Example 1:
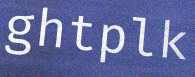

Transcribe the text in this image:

ghtplk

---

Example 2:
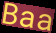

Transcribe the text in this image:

Baa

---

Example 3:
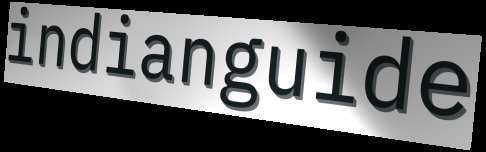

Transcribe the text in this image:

indianguide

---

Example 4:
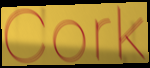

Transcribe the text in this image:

Cork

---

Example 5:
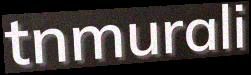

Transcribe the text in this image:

tnmurali